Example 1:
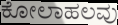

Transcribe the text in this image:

ಕೋಲಾಹಲವು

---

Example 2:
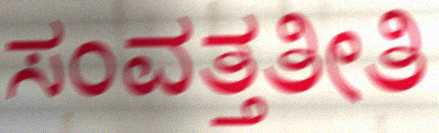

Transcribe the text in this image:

ಸಂವತ್ತತೀತಿ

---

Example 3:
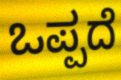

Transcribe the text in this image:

ಒಪ್ಪದೆ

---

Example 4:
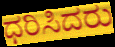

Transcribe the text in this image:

ಧರಿಸಿದರು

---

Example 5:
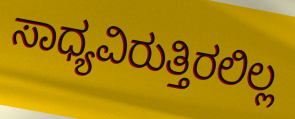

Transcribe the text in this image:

ಸಾಧ್ಯವಿರುತ್ತಿರಲಿಲ್ಲ